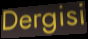
Dergisi